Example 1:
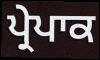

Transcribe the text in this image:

ਪ੍ਰੇਪਾਕ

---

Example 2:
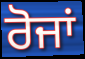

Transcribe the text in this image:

ਰੋਜਾਂ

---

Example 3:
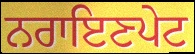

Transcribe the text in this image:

ਨਰਾਇਣਪੇਟ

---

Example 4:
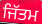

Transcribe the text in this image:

ਜਿੱਤਮ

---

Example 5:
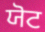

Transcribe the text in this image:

ਯੋਟ